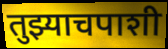
तुझ्याचपाशी